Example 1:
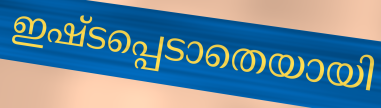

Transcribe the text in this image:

ഇഷ്ടപ്പെടാതെയായി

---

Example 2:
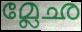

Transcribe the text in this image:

മ്ലേഛ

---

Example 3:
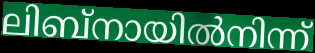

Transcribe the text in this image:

ലിബ്നായിൽനിന്ന്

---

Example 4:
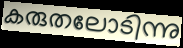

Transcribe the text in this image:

കരുതലോടിന്നു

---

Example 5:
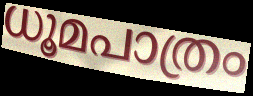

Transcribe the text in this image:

ധൂമപാത്രം